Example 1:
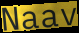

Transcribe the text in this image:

Naav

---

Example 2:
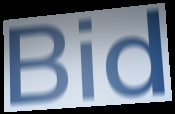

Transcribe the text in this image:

Bid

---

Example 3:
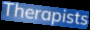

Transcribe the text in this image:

Therapists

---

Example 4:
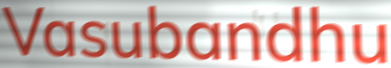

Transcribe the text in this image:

Vasubandhu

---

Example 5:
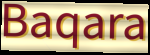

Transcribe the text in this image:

Baqara